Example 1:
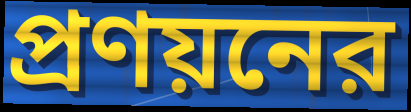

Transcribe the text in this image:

প্রণয়নের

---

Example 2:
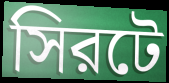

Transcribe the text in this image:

সিরটে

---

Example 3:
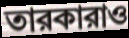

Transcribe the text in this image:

তারকারাও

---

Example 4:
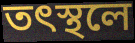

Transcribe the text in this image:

তৎস্থলে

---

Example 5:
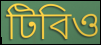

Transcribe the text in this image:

টিবিও